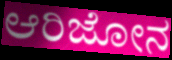
ಆರಿಜೋನ